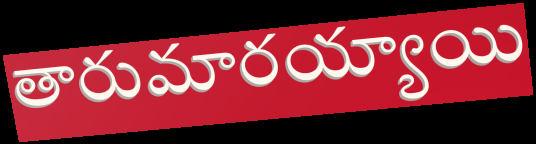
తారుమారయ్యాయి